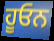
ਹੂਓਨ